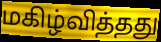
மகிழ்வித்தது